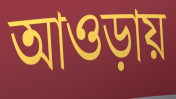
আওড়ায়